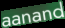
aanand